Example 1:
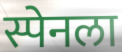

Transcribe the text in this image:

स्पेनला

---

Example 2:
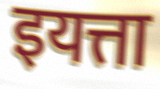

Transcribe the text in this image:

इयत्ता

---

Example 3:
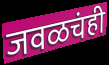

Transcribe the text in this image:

जवळचंही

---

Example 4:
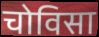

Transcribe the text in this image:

चोविसा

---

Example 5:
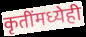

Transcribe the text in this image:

कृतींमध्येही